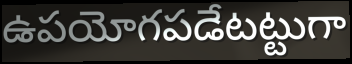
ఉపయోగపడేటట్టుగా